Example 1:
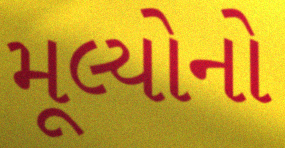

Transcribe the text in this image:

મૂલ્યોનો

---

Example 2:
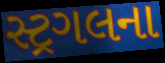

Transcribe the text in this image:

સ્ટ્રગલના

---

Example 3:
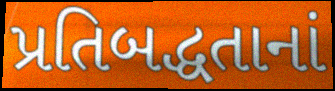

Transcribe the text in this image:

પ્રતિબદ્ધતાનાં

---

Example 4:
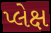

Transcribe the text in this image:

પ્લેક્ષ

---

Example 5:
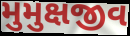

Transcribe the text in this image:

મુમુક્ષજીવ